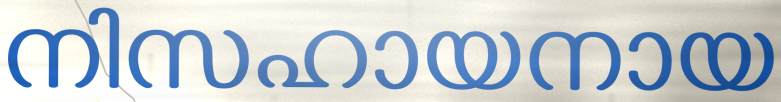
നിസഹായനായ